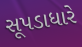
સૂપડાધારે